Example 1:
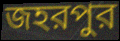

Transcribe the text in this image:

জহরপুর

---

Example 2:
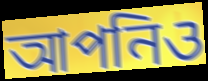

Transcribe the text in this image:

আপনিও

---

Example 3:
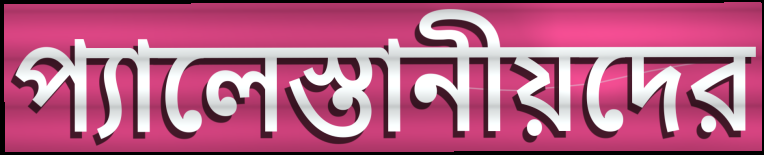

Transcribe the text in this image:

প্যালেস্তানীয়দের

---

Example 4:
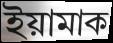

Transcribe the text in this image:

ইয়ামাক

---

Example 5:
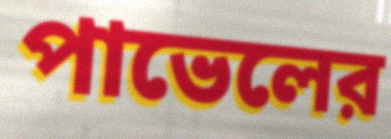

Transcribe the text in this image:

পাভেলের